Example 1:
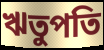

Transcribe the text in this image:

ঋতুপতি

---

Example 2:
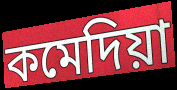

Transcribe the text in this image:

কমেদিয়া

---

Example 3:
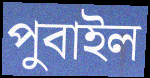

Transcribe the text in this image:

পুবাইল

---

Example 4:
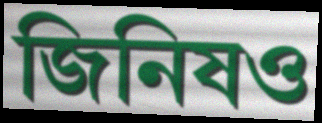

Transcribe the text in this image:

জিনিষও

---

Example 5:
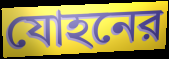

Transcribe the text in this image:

যোহনের